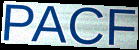
PACF